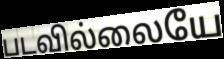
படவில்லையே